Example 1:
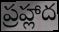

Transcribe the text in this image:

ప్రహ్లాద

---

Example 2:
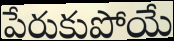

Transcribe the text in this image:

పేరుకుపోయే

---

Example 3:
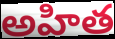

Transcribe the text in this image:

అహిత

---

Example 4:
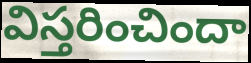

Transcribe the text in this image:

విస్తరించిందా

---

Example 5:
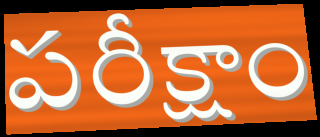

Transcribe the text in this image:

పరీక్షాం